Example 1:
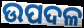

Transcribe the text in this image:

ଉପଦଳ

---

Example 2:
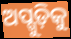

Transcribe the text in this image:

ଅପ୍ଗୁଡ଼ିକୁ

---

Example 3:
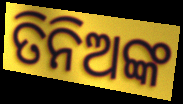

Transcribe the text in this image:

ତିନିଅଙ୍କ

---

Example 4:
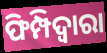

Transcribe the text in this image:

ଫିମ୍ପିଦ୍ଵାରା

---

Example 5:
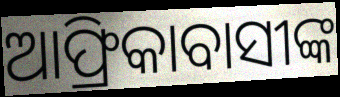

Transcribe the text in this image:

ଆଫ୍ରିକାବାସୀଙ୍କ